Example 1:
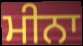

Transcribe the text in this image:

ਮੀਨਾ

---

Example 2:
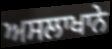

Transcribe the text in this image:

ਅਸਲਾਖਾਨੇ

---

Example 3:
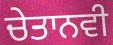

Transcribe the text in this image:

ਚੇਤਾਨਵੀ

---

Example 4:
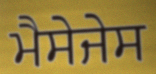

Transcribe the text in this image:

ਮੈਸੇਜੇਸ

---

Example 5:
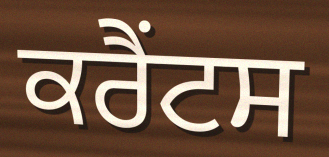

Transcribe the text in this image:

ਕਰੈਂਟਸ